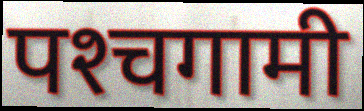
पश्चगामी